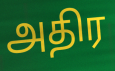
அதிர